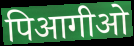
पिआगीओ